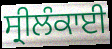
ਸ੍ਰੀਲੰਕਾਈ